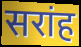
सरांह